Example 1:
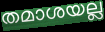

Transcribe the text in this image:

തമാശയല്ല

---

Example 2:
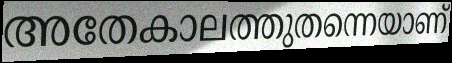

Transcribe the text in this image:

അതേകാലത്തുതന്നെയാണ്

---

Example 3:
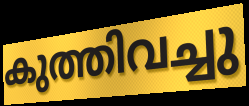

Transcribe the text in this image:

കുത്തിവച്ചു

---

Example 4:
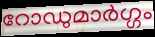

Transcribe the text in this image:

റോഡുമാർഗ്ഗം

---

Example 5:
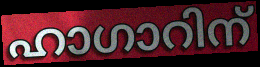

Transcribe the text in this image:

ഹാഗാറിന്